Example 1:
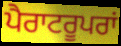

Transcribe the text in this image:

ਪੈਰਾਟਰੂਪਰਾਂ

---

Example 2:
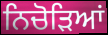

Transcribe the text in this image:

ਨਿਚੋੜਿਆਂ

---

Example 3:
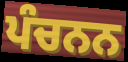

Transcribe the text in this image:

ਪੰਚਨਨ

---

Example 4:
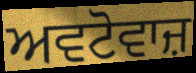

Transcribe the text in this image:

ਅਵਟੋਵਾਜ਼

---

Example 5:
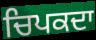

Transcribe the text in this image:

ਚਿਪਕਦਾ